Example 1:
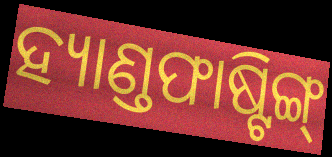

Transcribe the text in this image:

ହ୍ୟାଣ୍ଡଫାଷ୍ଟିଙ୍ଗ୍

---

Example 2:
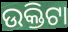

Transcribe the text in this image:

ଉକ୍ତିଟା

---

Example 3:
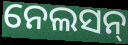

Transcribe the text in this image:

ନେଲସନ୍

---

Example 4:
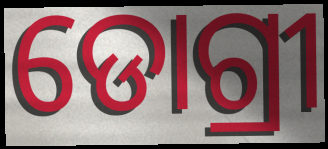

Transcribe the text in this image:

ଡୋଗ୍ରୀ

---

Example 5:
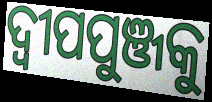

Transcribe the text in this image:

ଦ୍ଵୀପପୁଞ୍ଜକୁ